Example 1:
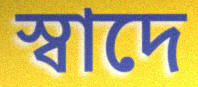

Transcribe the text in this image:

স্বাদে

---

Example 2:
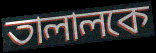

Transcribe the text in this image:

তালালকে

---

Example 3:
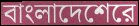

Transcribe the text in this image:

বাংলাদেশেরে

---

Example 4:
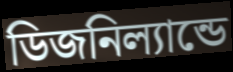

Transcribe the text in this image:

ডিজনিল্যান্ডে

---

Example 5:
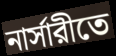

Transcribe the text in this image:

নার্সারীতে